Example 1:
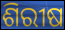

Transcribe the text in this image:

ଶିରୀଷ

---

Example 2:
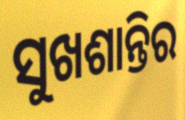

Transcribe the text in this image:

ସୁଖଶାନ୍ତିର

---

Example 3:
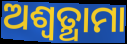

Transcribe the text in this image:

ଅଶ୍ଵତ୍ଥାମା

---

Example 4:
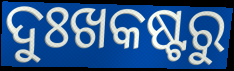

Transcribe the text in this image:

ଦୁଃଖକଷ୍ଟରୁ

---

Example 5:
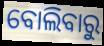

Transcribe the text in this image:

ବୋଲିବାରୁ